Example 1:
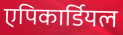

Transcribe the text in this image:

एपिकार्डियल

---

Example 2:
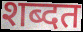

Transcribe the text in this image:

शब्दत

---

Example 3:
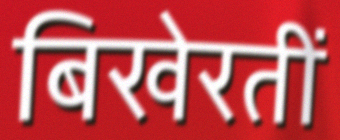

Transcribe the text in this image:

बिखेरतीं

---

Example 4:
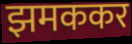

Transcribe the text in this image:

झमककर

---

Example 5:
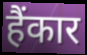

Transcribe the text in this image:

हैंकार